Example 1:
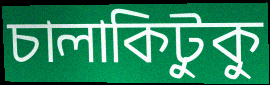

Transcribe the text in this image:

চালাকিটুকু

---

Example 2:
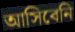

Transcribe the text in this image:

আসিবেনি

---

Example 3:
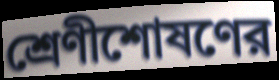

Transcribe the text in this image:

শ্রেণীশোষণের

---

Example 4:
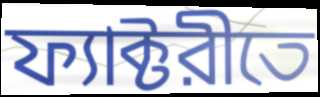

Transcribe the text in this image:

ফ্যাক্টরীতে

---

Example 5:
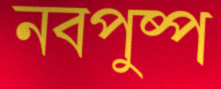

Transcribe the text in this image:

নবপুষ্প